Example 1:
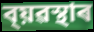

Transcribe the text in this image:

ব্য়ৱস্থাৰ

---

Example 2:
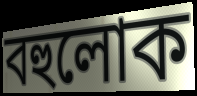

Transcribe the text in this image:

বহুলোক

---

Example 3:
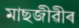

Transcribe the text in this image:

মাছজীৱীৰ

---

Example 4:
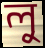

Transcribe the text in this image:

লু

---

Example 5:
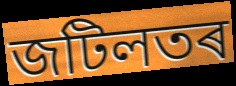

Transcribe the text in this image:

জটিলতৰ